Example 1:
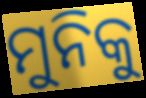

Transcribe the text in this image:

ମୁନିକୁ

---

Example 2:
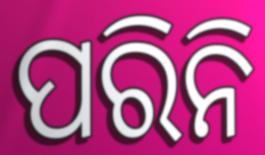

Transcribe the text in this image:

ପରିନି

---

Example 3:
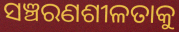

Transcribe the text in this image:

ସଞ୍ଚରଣଶୀଳତାକୁ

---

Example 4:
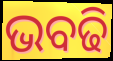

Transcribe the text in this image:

ଭବଢି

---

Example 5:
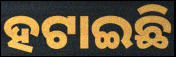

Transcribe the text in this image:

ହଟାଇଛି